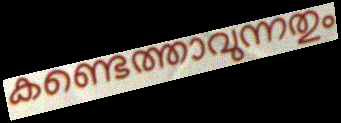
കണ്ടെത്താവുന്നതും